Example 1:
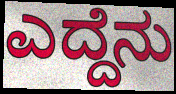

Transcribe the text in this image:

ಎದ್ದೆನು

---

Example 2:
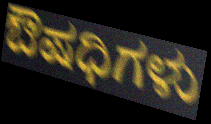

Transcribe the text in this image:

ಔಷಧಿಗಳು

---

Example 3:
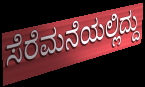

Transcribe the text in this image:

ಸೆರೆಮನೆಯಲ್ಲಿದ್ದು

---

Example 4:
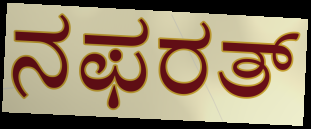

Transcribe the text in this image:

ನಫರತ್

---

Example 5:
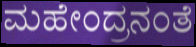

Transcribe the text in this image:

ಮಹೇಂದ್ರನಂತೆ